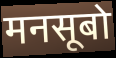
मनसूबो